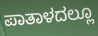
ಪಾತಾಳದಲ್ಲೂ